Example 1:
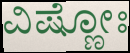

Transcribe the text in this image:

ವಿಷ್ಣೋಃ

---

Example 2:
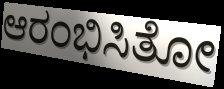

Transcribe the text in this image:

ಆರಂಭಿಸಿತೋ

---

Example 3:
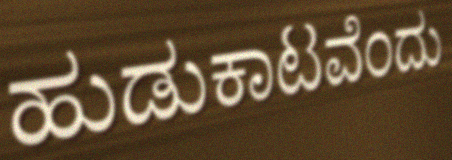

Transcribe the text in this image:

ಹುಡುಕಾಟವೆಂದು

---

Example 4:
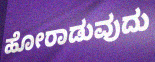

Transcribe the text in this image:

ಹೋರಾಡುವುದು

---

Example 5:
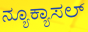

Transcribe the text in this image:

ನ್ಯೂಕ್ಯಾಸಲ್